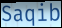
Saqib